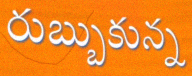
రుబ్బుకున్న